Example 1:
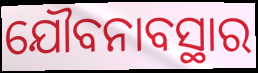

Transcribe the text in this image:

ଯୌବନାବସ୍ଥାର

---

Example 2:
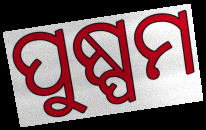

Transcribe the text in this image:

ପୁଷ୍ପମ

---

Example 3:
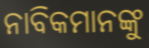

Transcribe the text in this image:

ନାବିକମାନଙ୍କୁ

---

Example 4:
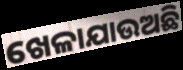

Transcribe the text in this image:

ଖେଳାଯାଉଅଛି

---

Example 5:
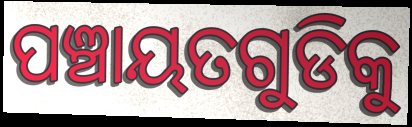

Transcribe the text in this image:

ପଞ୍ଚାୟତଗୁଡିକୁ